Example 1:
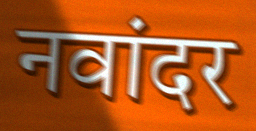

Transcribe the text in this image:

नवांदर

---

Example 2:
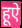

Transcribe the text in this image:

हूऐ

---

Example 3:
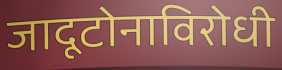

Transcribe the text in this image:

जादूटोनाविरोधी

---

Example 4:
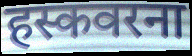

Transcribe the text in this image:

हस्कवरना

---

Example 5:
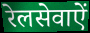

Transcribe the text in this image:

रेलसेवाऐं